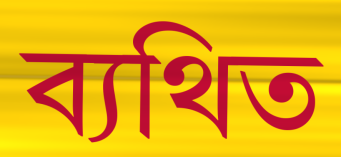
ব্যথিত